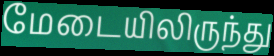
மேடையிலிருந்து